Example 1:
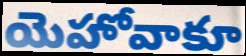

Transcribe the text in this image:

యెహోవాకూ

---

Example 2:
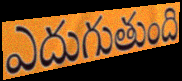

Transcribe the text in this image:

ఎదుగుతుంది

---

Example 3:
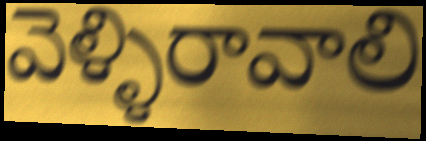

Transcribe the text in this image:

వెళ్ళిరావాలి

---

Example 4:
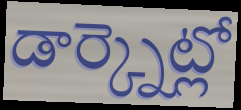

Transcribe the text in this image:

డార్క్నెట్లో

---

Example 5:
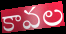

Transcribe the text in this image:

కావల